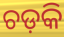
ଚଡ଼କି